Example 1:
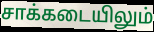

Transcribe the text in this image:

சாக்கடையிலும்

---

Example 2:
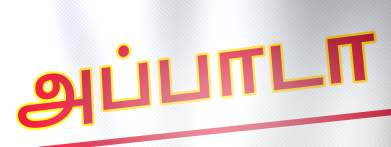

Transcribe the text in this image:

அப்பாடா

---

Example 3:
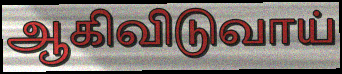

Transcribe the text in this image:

ஆகிவிடுவாய்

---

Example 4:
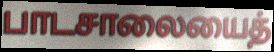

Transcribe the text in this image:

பாடசாலையைத்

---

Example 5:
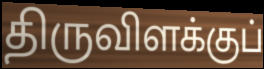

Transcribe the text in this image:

திருவிளக்குப்